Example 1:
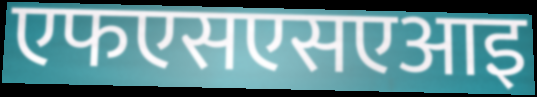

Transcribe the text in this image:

एफएसएसएआइ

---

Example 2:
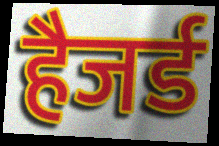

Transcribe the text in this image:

हैजर्ड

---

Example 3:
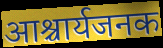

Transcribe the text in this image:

आश्चार्यजनक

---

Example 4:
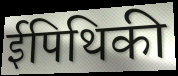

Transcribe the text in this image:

ईपिथिकी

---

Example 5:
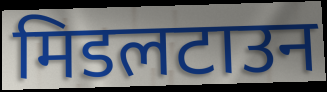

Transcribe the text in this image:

मिडलटाउन